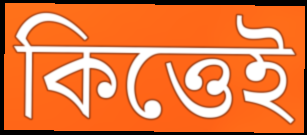
কিত্তেই